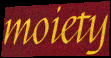
moiety